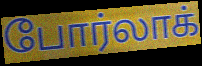
போர்லாக்